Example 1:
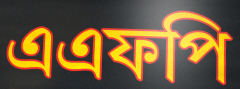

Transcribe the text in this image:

এএফপি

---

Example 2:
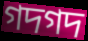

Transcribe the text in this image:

গদগদ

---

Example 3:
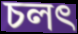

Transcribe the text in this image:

চলৎ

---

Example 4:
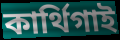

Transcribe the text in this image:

কার্থিগাই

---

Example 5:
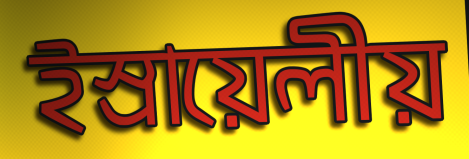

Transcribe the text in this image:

ইস্রায়েলীয়